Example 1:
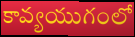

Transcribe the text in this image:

కావ్యయుగంలో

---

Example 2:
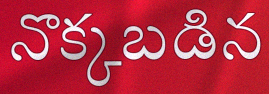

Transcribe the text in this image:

నొక్కబడిన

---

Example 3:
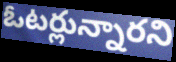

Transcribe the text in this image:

ఓటర్లున్నారని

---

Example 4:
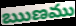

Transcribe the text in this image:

ఋణము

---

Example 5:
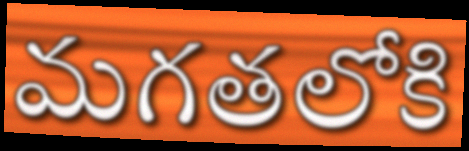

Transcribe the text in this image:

మగతలోకి